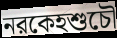
নরকেহশুচৌ